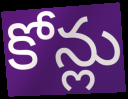
కోన్లు